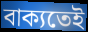
বাক্যতেই